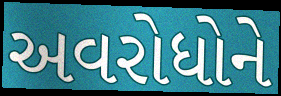
અવરોધોને